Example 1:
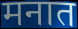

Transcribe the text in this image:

मनात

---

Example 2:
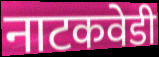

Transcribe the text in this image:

नाटकवेडी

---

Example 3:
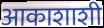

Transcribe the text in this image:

आकाशाशी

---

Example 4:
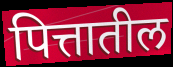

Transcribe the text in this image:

पित्तातील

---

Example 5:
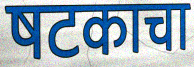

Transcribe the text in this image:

षटकाचा